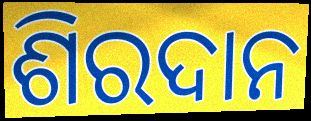
ଶିରଦାନ